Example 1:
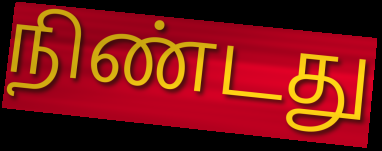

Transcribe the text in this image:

நிண்டது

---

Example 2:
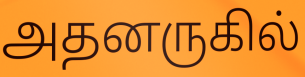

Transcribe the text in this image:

அதனருகில்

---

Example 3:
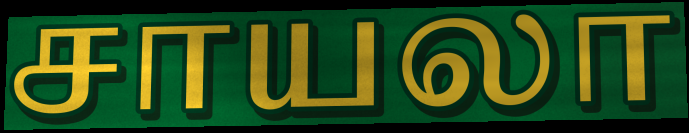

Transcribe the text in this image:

சாயலா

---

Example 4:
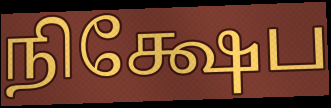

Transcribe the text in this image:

நிக்ஷேப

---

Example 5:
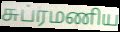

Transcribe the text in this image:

சுப்ரமணிய